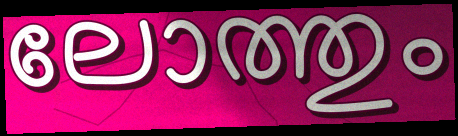
ലോത്തും